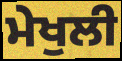
ਮੇਖੁਲੀ